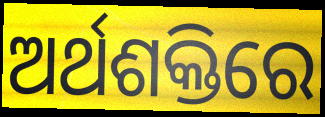
ଅର୍ଥଶକ୍ତିରେ